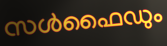
സൾഫൈഡും